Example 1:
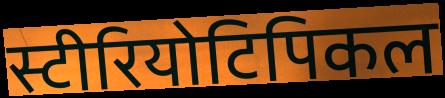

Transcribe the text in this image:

स्टीरियोटिपिकल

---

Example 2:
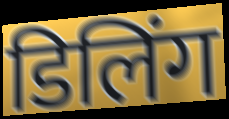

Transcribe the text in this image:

डिलिंग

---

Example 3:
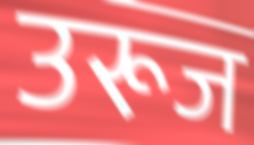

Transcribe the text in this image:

उरूज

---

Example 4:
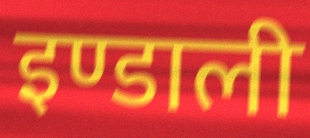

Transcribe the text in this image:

इण्डाली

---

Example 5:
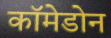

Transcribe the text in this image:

कॉमेडोन